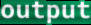
output